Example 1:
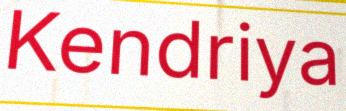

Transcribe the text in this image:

Kendriya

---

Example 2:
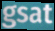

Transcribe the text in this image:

gsat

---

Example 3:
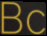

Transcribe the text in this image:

Bc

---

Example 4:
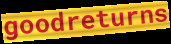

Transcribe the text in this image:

goodreturns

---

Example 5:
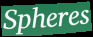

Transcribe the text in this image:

Spheres